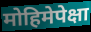
मोहिमेपेक्षा